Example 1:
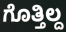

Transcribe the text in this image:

ಗೊತ್ತಿಲ್ದ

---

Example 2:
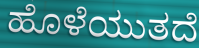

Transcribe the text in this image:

ಹೊಳೆಯುತದೆ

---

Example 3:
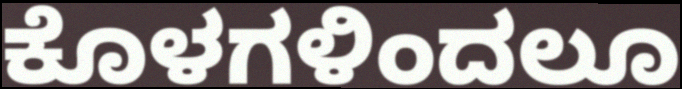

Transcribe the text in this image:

ಕೊಳಗಳಿಂದಲೂ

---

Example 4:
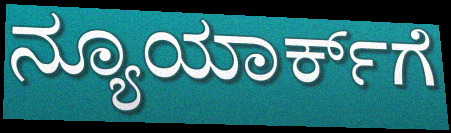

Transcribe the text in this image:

ನ್ಯೂಯಾರ್ಕ್‌ಗೆ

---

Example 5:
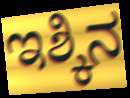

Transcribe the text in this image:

ಇಶ್ಕಿನ